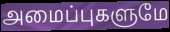
அமைப்புகளுமே